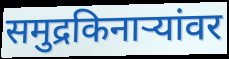
समुद्रकिनाऱ्यांवर